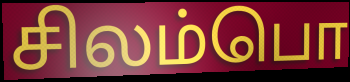
சிலம்பொ